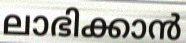
ലാഭിക്കാൻ